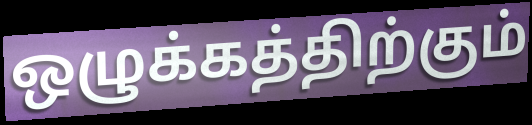
ஒழுக்கத்திற்கும்